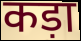
कड़ा